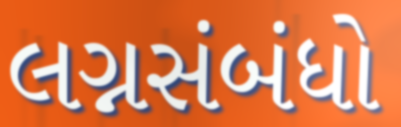
લગ્નસંબંધો